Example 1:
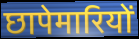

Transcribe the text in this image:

छापेमारियों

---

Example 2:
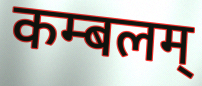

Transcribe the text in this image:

कम्बलम्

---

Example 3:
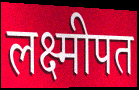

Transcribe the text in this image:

लक्ष्मीपत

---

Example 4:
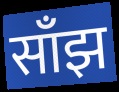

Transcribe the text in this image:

साँझ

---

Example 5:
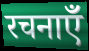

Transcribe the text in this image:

रचनाएँ